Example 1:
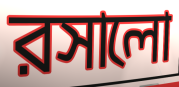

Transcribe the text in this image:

রসালো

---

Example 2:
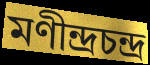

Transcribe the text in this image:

মণীন্দ্রচন্দ্র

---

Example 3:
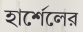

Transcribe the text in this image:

হার্শেলের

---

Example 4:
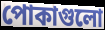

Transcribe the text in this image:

পোকাগুলো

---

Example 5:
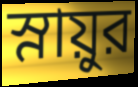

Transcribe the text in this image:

স্নায়ুর